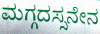
ಮಗ್ಗದಸ್ಸನೇನ